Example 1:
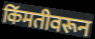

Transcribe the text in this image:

किंमतीवरून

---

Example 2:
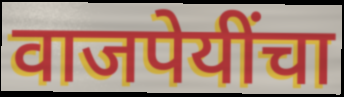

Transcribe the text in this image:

वाजपेयींचा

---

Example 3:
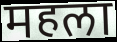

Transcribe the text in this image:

महला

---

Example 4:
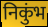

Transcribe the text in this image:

निकुंभ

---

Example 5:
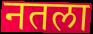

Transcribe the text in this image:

नतला